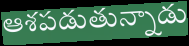
ఆశపడుతున్నాడు